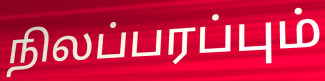
நிலப்பரப்பும்